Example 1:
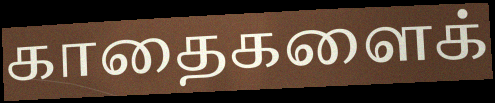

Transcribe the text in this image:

காதைகளைக்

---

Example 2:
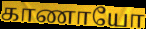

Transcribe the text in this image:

காணாயோ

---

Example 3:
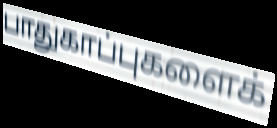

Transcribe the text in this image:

பாதுகாப்புகளைக்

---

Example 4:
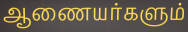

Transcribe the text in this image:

ஆணையர்களும்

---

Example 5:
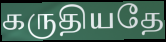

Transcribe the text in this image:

கருதியதே